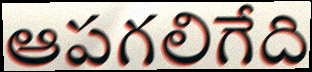
ఆపగలిగేది